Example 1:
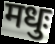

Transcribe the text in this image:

मधुः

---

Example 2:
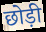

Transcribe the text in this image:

छोड़ी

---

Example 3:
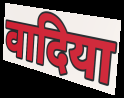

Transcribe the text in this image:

वादिया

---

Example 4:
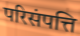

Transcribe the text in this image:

परिसंपत्ति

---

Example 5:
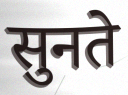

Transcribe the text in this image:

सुनते